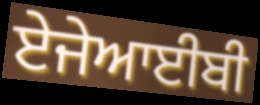
ਏਜੇਆਈਬੀ